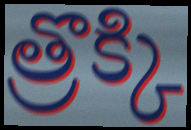
త్రొక్కి